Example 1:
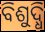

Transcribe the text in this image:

ବିଶୁଦ୍ଧି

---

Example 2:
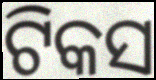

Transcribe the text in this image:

ଟିକସ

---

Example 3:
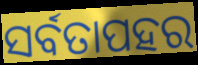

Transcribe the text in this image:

ସର୍ବତାପହର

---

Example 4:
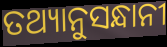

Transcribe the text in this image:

ତଥ୍ୟାନୁସନ୍ଧାନୀ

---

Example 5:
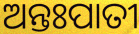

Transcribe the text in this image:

ଅନ୍ତଃପାତୀ